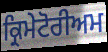
ਕ੍ਰਿਮੇਟੋਰੀਅਮ